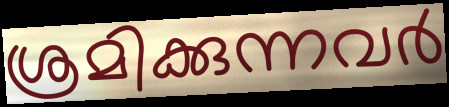
ശ്രമിക്കുന്നവർ